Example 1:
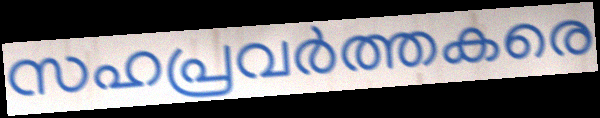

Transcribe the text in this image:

സഹപ്രവർത്തകരെ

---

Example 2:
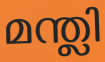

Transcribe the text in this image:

മന്ത്ലി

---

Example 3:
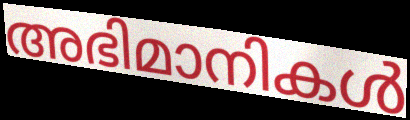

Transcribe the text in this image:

അഭിമാനികൾ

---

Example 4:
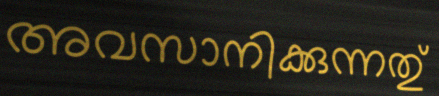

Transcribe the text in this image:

അവസാനിക്കുന്നതു്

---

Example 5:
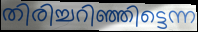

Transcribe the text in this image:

തിരിച്ചറിഞ്ഞിട്ടെന്ന